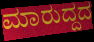
ಮಾರುದ್ದದ